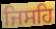
ਜਿਸਹਿ